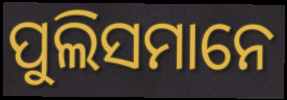
ପୁଲିସମାନେ